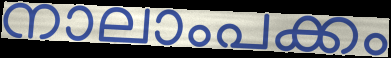
നാലാംപക്കം